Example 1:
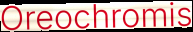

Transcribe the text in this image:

Oreochromis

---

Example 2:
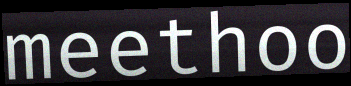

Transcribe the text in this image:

meethoo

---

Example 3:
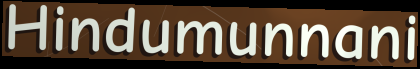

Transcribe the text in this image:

Hindumunnani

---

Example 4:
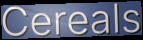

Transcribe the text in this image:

Cereals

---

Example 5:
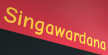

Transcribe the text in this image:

Singawardana